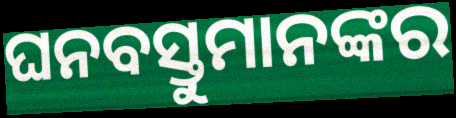
ଘନବସ୍ତୁମାନଙ୍କର